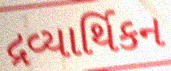
દ્રવ્યાર્થિકન